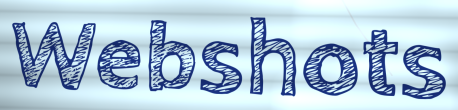
Webshots